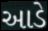
આડે